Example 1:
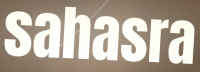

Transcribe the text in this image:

sahasra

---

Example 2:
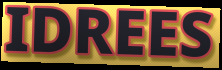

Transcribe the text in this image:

IDREES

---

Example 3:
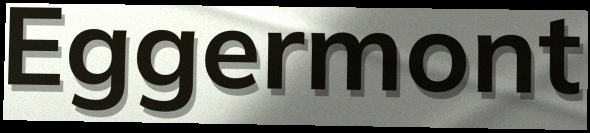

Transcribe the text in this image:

Eggermont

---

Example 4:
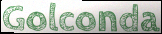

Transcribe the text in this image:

Golconda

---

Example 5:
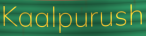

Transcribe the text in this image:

Kaalpurush